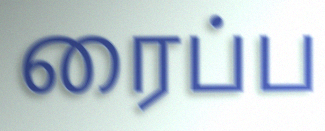
ரைப்ப